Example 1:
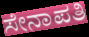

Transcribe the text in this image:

ಸೇನಾಪತಿ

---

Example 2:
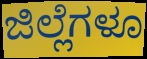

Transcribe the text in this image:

ಜಿಲ್ಲೆಗಳೂ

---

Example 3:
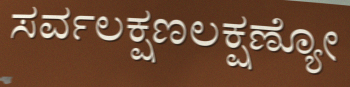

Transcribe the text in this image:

ಸರ್ವಲಕ್ಷಣಲಕ್ಷಣ್ಯೋ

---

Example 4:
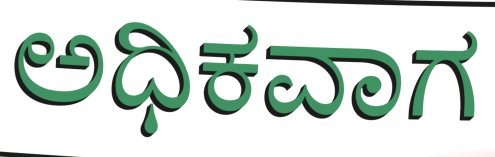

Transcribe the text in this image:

ಅಧಿಕವಾಗ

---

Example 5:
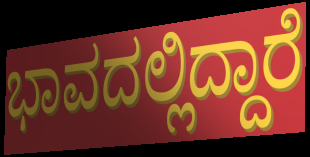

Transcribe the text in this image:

ಭಾವದಲ್ಲಿದ್ದಾರೆ